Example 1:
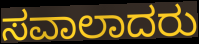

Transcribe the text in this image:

ಸವಾಲಾದರು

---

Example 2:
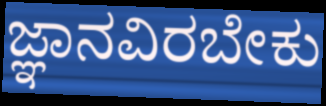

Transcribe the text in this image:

ಜ್ಞಾನವಿರಬೇಕು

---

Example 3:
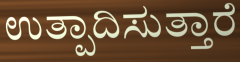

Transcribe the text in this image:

ಉತ್ಪಾದಿಸುತ್ತಾರೆ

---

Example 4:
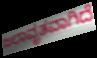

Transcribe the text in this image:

ಜಲಾವೃತವಾಗಿದೆ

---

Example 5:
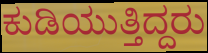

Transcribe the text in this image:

ಕುಡಿಯುತ್ತಿದ್ದರು